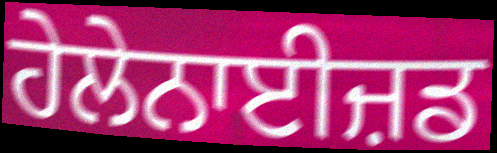
ਹੇਲੇਨਾਈਜ਼ਡ